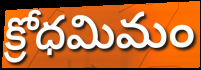
క్రోధమిమం